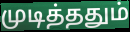
முடித்ததும்